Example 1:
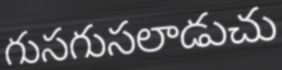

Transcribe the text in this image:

గుసగుసలాడుచు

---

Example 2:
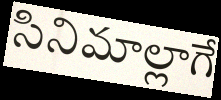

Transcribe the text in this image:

సినిమాల్లాగే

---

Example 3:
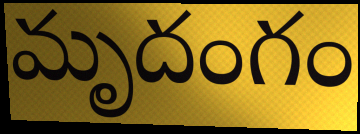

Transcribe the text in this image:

మృదంగం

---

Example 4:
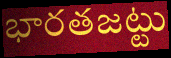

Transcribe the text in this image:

భారతజట్టు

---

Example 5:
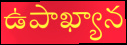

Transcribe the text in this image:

ఉపాఖ్యాన